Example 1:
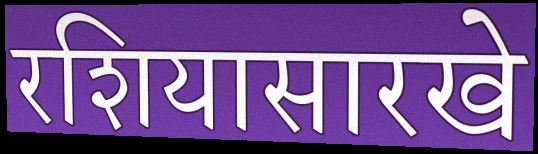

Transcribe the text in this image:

रशियासारखे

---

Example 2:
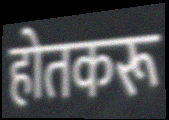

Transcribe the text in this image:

होतकरू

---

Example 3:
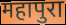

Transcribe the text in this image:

महापुरा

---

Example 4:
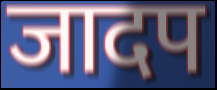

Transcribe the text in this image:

जादप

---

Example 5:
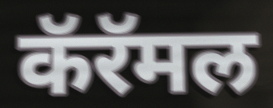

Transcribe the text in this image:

कॅरॅमल